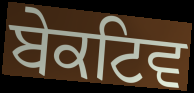
ਬੇਕਟਿਵ